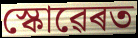
স্কোৱেৰত